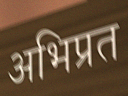
अभिप्रत